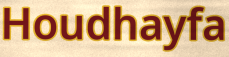
Houdhayfa